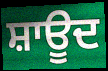
ਸ਼ਾਊਦ